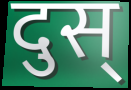
दुस्